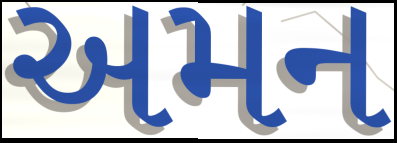
અમન